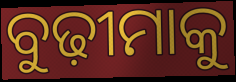
ବୁଢ଼ୀମାକୁ